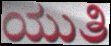
ಯುತಿ